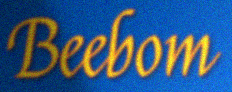
Beebom